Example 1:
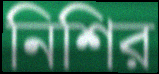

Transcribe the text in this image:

নিশির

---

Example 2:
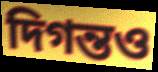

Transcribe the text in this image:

দিগন্তও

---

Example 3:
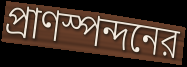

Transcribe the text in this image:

প্রাণস্পন্দনের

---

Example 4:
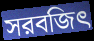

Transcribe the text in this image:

সরবজিৎ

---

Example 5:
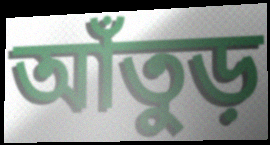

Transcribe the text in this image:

আঁতুড়